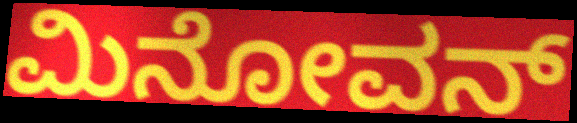
ಮಿನೋವನ್